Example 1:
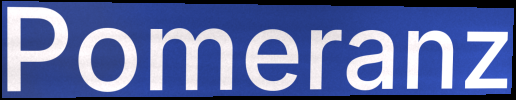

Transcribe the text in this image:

Pomeranz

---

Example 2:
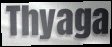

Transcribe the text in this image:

Thyaga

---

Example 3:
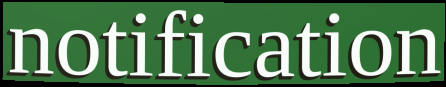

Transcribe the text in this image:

notification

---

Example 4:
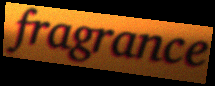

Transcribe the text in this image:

fragrance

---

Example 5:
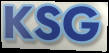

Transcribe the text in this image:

KSG